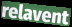
relavent